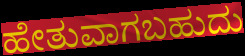
ಹೇತುವಾಗಬಹುದು